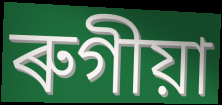
ৰুগীয়া